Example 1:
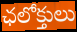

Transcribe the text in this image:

ఛలోక్తులు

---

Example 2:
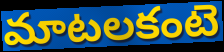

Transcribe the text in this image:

మాటలకంటె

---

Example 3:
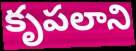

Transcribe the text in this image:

కృపలాని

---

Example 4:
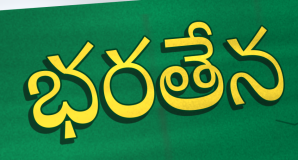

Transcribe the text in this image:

భరతేన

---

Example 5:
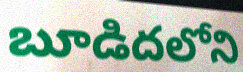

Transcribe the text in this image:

బూడిదలోని